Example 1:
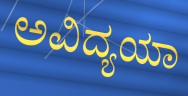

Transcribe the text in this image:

ಅವಿದ್ಯಯಾ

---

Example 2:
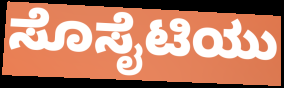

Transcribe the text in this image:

ಸೊಸೈಟಿಯು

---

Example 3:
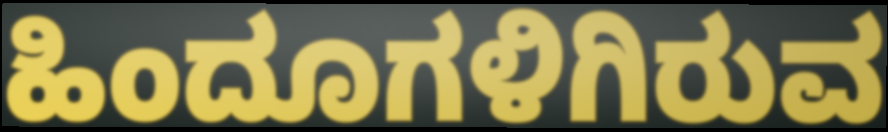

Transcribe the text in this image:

ಹಿಂದೂಗಳಿಗಿರುವ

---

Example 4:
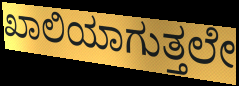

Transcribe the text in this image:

ಖಾಲಿಯಾಗುತ್ತಲೇ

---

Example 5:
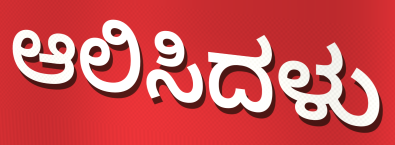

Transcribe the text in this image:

ಆಲಿಸಿದಳು